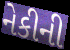
નેકીની